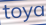
toya